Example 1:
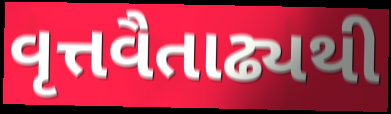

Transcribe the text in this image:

વૃત્તવૈતાઢ્યથી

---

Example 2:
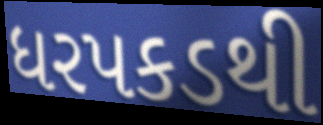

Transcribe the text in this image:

ધરપકડથી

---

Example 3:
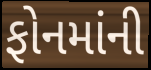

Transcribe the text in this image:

ફોનમાંની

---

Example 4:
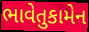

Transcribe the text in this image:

ભાવેતુકામેન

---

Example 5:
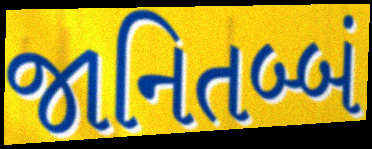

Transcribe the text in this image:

જાનિતબ્બં